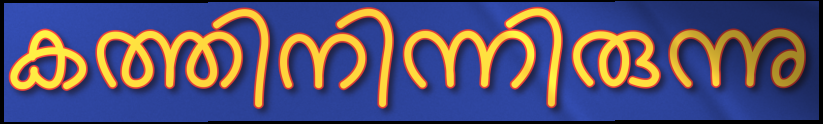
കത്തിനിന്നിരുന്നു